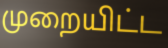
முறையிட்ட